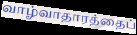
வாழ்வாதாரத்தைப்